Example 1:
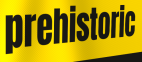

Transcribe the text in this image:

prehistoric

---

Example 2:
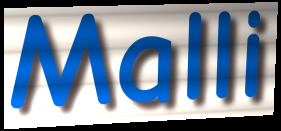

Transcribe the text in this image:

Malli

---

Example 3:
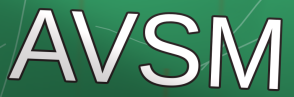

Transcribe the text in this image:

AVSM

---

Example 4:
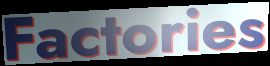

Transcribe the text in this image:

Factories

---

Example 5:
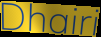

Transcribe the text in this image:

Dhairi